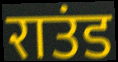
राउंड